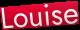
Louise